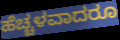
ಹೆಚ್ಚಳವಾದರೂ